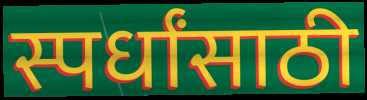
स्पर्धांसाठी